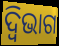
ଦ୍ୱିଭାଗ